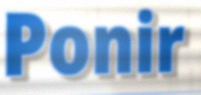
Ponir